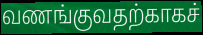
வணங்குவதற்காகச்